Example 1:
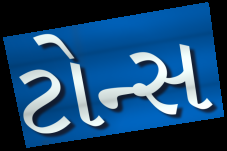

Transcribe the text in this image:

ટોન્સ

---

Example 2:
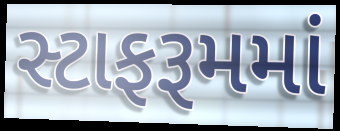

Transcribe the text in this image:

સ્ટાફરૂમમાં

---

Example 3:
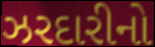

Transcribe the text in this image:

ઝરદારીનો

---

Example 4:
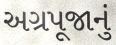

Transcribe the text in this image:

અગ્રપૂજાનું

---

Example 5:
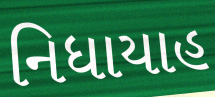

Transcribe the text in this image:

નિધાયાહ